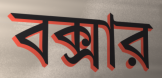
বক্সার